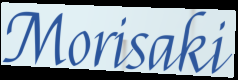
Morisaki